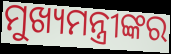
ମୁଖ୍ୟମନ୍ତ୍ରୀଙ୍କର